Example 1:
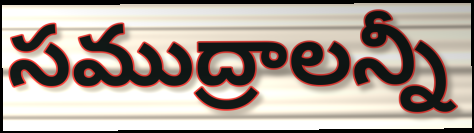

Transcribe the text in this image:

సముద్రాలన్నీ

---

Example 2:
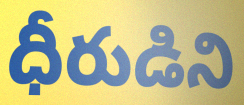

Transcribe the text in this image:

ధీరుడిని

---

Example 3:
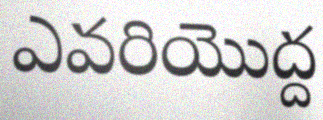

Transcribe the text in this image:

ఎవరియొద్ద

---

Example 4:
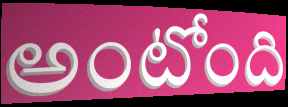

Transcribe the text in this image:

అంటోంది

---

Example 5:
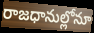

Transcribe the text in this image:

రాజధానుల్లోనూ